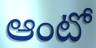
ఆంటో